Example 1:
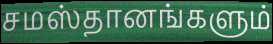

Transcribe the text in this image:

சமஸ்தானங்களும்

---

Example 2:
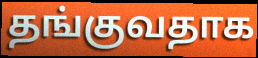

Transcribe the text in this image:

தங்குவதாக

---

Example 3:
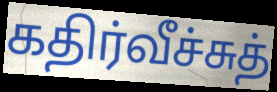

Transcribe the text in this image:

கதிர்வீச்சுத்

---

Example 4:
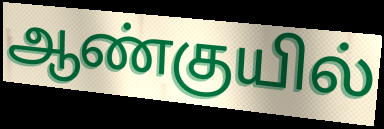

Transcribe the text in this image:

ஆண்குயில்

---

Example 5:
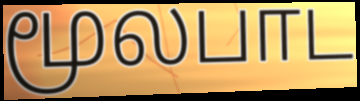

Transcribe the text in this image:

மூலபாட